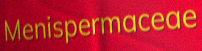
Menispermaceae